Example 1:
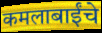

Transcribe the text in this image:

कमलाबाईंचे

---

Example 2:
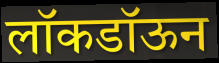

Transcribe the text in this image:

लॉकडॉऊन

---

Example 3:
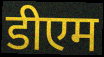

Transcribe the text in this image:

डीएम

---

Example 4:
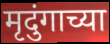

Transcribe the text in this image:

मृदुंगाच्या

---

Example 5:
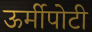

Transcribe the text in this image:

ऊर्मीपोटी